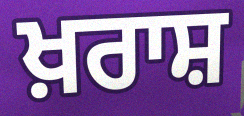
ਖ਼ਰਾਸ਼